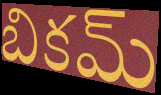
బికమ్